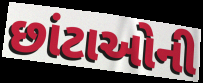
છાંટાઓની